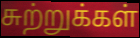
சுற்றுக்கள்